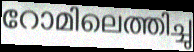
റോമിലെത്തിച്ചു